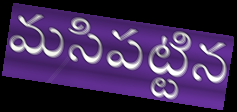
మసిపట్టిన